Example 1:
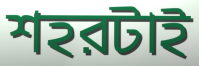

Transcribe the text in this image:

শহরটাই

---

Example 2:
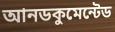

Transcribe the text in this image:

আনডকুমেন্টেড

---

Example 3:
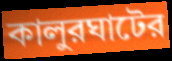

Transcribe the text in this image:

কালুরঘাটের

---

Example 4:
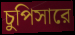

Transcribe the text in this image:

চুপিসারে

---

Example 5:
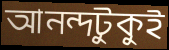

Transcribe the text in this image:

আনন্দটুকুই